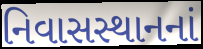
નિવાસસ્થાનનાં